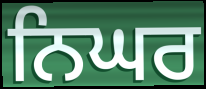
ਨਿਘਰ